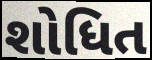
શોધિત